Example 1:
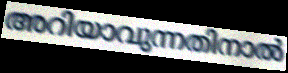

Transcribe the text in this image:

അറിയാവുന്നതിനാൽ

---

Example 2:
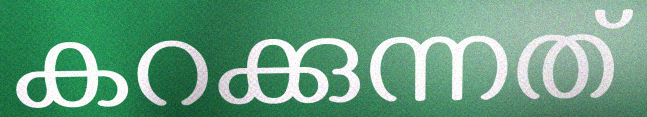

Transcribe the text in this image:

കറക്കുന്നത്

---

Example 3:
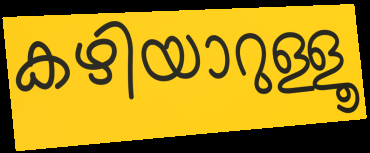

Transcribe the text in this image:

കഴിയാറുള്ളൂ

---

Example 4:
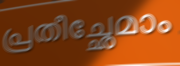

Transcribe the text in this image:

പ്രതീച്ഛേമാം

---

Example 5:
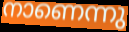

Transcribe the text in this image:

നാണെന്നു